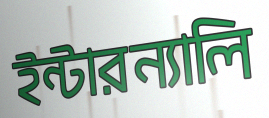
ইন্টারন্যালি